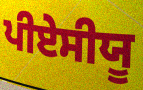
ਪੀਏਸੀਯੂ